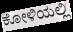
ಕೋಳಿಯಲ್ಲಿ